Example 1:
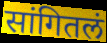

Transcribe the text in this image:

सांगितलं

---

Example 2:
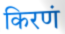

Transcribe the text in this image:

किरणं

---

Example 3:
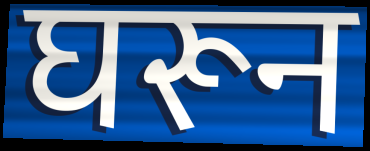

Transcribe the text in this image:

घरून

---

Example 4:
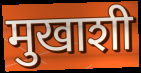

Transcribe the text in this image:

मुखाशी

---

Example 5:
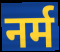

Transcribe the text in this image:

नर्म